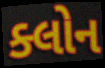
ક્લોન